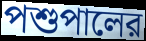
পশুপালের